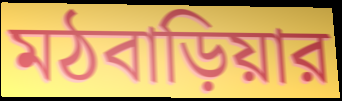
মঠবাড়িয়ার